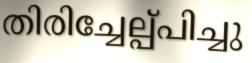
തിരിച്ചേല്പ്പിച്ചു